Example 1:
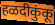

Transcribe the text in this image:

हळदीकुंकू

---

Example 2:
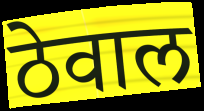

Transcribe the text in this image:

ठेवाल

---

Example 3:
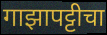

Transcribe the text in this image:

गाझापट्टीचा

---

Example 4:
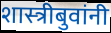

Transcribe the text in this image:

शास्त्रीबुवांनी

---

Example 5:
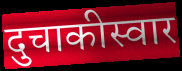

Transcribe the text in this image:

दुचाकीस्वार